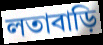
লতাবাড়ি